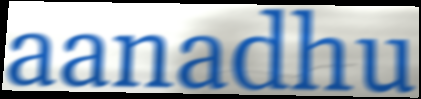
aanadhu